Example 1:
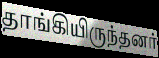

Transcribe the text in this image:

தாங்கியிருந்தனர்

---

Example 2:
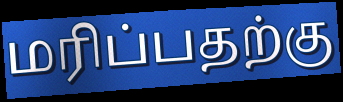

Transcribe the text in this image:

மரிப்பதற்கு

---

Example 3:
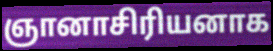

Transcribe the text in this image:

ஞானாசிரியனாக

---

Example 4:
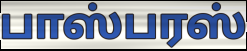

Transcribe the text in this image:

பாஸ்பரஸ்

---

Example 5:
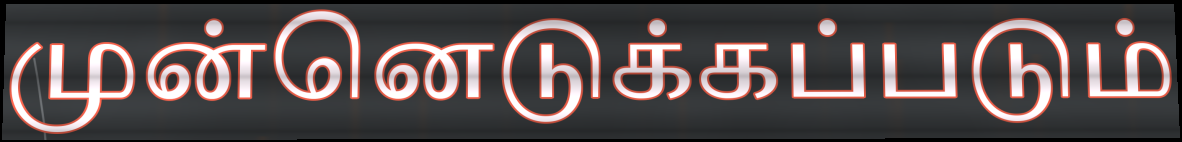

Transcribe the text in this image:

முன்னெடுக்கப்படும்